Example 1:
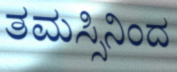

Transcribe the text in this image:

ತಮಸ್ಸಿನಿಂದ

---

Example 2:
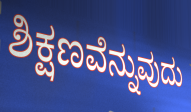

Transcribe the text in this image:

ಶಿಕ್ಷಣವೆನ್ನುವುದು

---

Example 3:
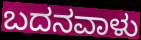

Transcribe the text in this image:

ಬದನವಾಳು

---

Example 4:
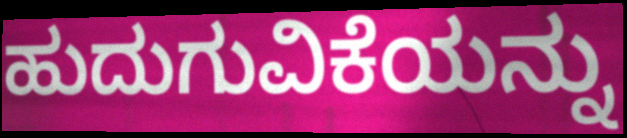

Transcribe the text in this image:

ಹುದುಗುವಿಕೆಯನ್ನು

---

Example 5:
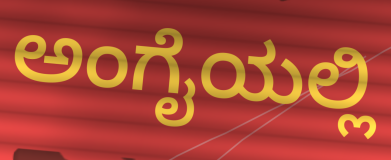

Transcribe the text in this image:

ಅಂಗೈಯಲ್ಲಿ